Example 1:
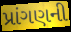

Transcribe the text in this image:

પ્રાંગણની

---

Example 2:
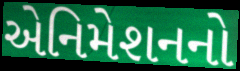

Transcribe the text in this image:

એનિમેશનનો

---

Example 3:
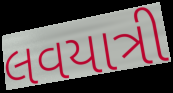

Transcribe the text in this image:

લવયાત્રી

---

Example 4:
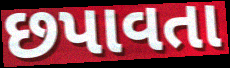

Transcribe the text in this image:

છપાવતા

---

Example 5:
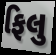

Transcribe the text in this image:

ફિલુ